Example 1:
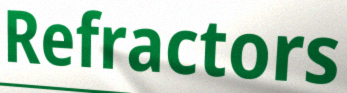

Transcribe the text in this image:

Refractors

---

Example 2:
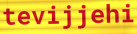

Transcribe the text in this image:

tevijjehi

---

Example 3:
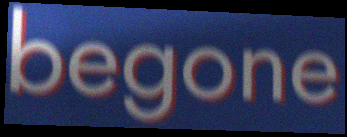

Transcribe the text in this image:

begone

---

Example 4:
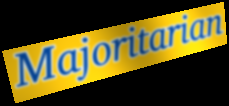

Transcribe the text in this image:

Majoritarian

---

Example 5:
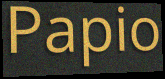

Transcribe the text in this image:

Papio